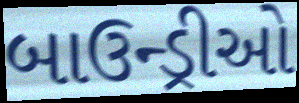
બાઉન્ડ્રીઓ